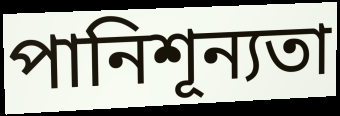
পানিশূন্যতা